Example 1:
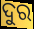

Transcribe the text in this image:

ଦୁର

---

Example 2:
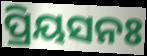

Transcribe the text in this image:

ପ୍ରିୟସନଃ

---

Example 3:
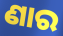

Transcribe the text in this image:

ଣାର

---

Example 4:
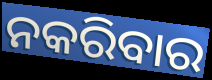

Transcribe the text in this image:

ନକରିବାର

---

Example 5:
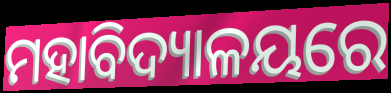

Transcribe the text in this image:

ମହାବିଦ୍ୟାଳୟରେ